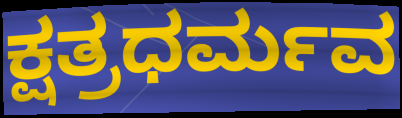
ಕ್ಷತ್ರಧರ್ಮವ